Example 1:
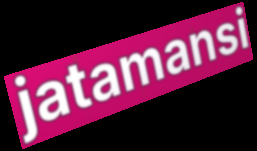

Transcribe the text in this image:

jatamansi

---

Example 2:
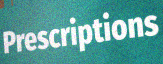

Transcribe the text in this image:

Prescriptions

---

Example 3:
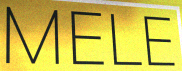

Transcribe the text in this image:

MELE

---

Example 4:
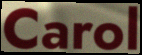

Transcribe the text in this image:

Carol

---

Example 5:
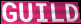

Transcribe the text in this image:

GUILD